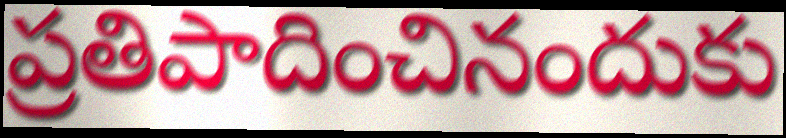
ప్రతిపాదించినందుకు